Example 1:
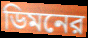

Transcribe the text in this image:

ডিমনের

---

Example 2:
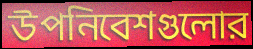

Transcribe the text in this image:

উপনিবেশগুলোর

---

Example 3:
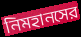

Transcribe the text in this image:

নিমহানসের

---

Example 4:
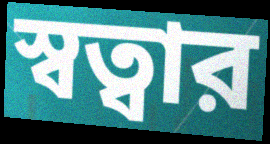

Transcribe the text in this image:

স্বত্বার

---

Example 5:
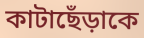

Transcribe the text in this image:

কাটাছেঁড়াকে